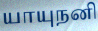
யாயுநனி